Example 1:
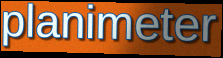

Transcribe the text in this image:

planimeter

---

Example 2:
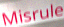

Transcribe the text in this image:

Misrule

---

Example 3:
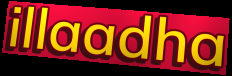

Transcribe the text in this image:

illaadha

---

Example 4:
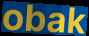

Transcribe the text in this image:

obak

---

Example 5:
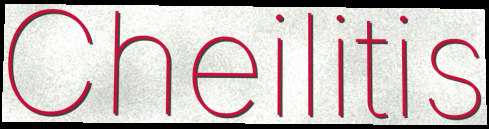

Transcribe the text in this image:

Cheilitis